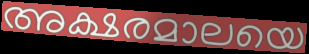
അക്ഷരമാലയെ